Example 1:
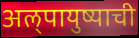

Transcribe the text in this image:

अल्पायुष्याची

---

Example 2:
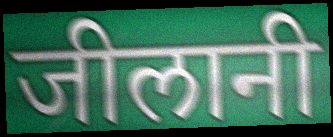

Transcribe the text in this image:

जीलानी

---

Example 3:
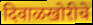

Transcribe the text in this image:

दिवाळखोरीचे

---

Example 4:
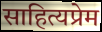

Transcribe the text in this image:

साहित्यप्रेम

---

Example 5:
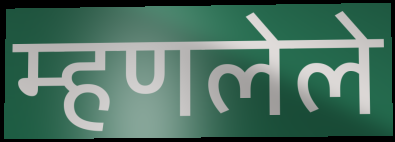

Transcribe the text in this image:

म्हणलेले